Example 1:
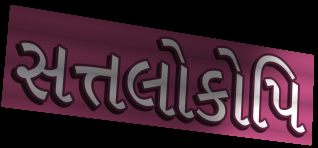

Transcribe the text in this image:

સત્તલોકોપિ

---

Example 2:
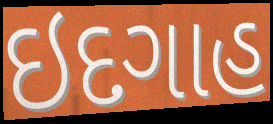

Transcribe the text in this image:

ઇદગાહ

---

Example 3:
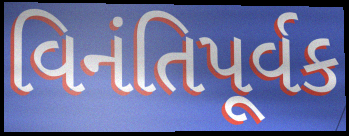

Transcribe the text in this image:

વિનંતિપૂર્વક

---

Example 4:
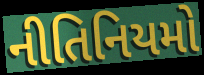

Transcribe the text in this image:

નીતિનિયમો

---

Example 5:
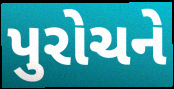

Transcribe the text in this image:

પુરોચને